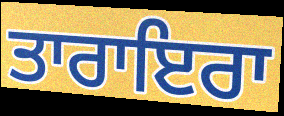
ਤਾਰਾਇਰਾ